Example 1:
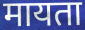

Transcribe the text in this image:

मायता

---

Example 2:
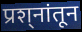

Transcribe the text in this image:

प्रश्नांतून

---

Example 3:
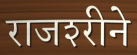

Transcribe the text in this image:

राजश्रीने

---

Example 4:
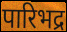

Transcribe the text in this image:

पारिभद्र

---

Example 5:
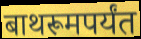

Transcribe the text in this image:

बाथरूमपर्यंत